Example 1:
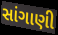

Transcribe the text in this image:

સાંગાણી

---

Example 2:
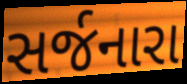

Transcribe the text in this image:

સર્જનારા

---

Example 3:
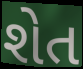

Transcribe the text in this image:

શેત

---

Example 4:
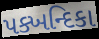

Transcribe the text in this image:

પક્ખન્દિકા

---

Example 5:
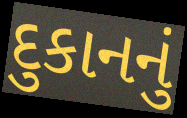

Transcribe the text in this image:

દુકાનનું